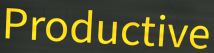
Productive